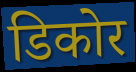
डिकोर